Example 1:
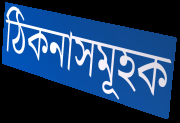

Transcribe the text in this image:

ঠিকনাসমূহক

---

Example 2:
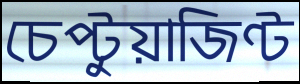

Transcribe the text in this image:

চেপ্টুয়াজিণ্ট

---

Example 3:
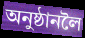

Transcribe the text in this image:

অনুষ্ঠানলৈ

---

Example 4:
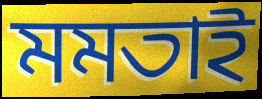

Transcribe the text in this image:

মমতাই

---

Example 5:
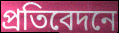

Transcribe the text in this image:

প্ৰতিবেদনে